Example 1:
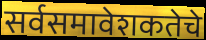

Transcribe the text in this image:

सर्वसमावेशकतेचे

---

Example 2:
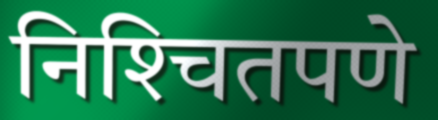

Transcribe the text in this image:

निश्‍चितपणे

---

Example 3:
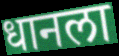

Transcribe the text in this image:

धानला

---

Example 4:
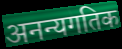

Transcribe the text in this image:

अनन्यगतिक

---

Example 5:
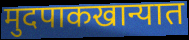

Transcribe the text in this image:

मुदपाकखान्यात